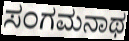
ಸಂಗಮನಾಥ